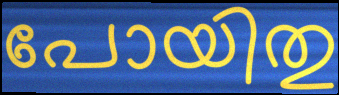
പോയിതു